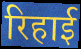
रिहाई